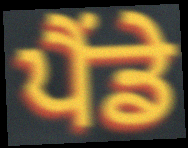
ਪੈਂਡੇ